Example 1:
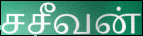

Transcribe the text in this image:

சசீவன்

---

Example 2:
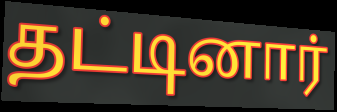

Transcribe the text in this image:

தட்டினார்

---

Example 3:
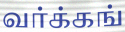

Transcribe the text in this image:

வர்க்கங்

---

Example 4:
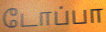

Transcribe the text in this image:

டோப்பா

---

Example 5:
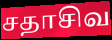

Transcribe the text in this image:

சதாசிவ